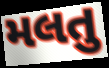
મલતુ